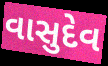
વાસુદેવ